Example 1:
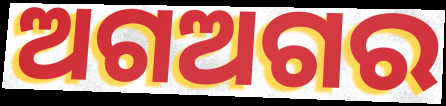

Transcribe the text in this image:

ଅଗଅଗର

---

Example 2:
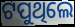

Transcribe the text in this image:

ଟପୁଥିଲେ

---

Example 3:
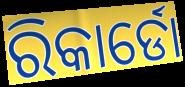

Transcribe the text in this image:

ରିକାର୍ଡୋ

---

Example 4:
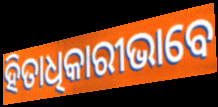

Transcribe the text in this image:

ହିତାଧିକାରୀଭାବେ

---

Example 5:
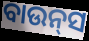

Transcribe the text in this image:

ବାଉନ୍‍ସ